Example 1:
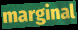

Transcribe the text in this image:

marginal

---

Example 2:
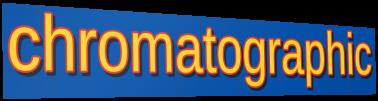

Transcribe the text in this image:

chromatographic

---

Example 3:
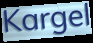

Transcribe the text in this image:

Kargel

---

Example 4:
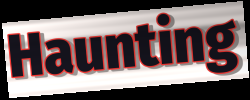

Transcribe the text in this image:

Haunting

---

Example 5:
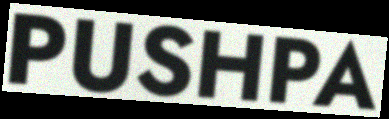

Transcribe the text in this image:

PUSHPA